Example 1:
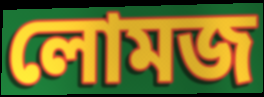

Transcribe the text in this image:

লোমজ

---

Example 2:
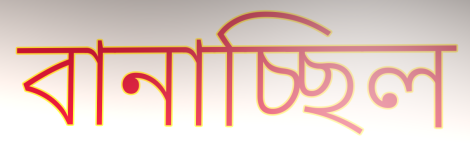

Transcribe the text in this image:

বানাচ্ছিল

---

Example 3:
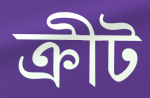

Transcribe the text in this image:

ক্রীট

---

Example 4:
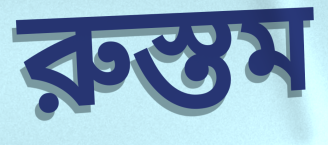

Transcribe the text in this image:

রুস্তম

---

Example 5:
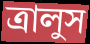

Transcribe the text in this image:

ত্রালুস